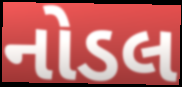
નોડલ